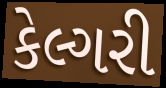
કેલ્ગરી